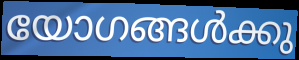
യോഗങ്ങൾക്കു